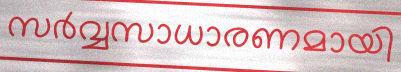
സർവ്വസാധാരണമായി